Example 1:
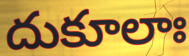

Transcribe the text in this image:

దుకూలాః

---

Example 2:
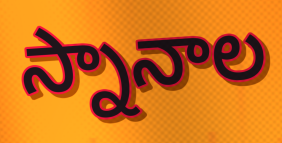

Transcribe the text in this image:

స్నానాల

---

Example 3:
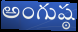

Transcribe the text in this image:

అంగుష్ఠ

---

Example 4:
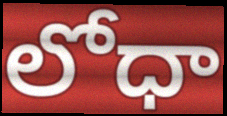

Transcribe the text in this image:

లోధా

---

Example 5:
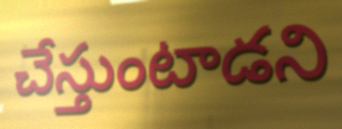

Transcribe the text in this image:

చేస్తుంటాడని